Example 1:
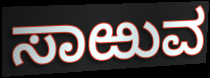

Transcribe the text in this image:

ಸಾಱುವ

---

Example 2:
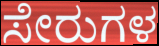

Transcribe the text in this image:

ಸೇರುಗಳ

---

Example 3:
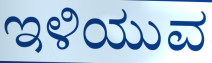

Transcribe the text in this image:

ಇಳಿಯುವ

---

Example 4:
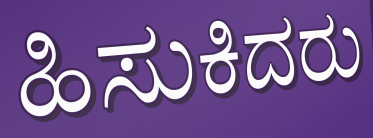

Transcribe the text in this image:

ಹಿಸುಕಿದರು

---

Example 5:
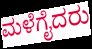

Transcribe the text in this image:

ಮಳೆಗೈದರು